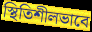
স্থিতিশীলভাবে